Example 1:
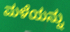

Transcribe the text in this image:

ಮಳೆಯನ್ನು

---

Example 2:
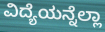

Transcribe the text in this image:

ವಿದ್ಯೆಯನ್ನೆಲ್ಲಾ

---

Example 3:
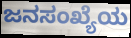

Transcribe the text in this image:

ಜನಸಂಖ್ಯೆಯ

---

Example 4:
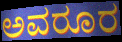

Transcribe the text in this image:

ಅವರೂರ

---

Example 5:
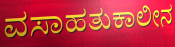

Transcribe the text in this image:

ವಸಾಹತುಕಾಲೀನ